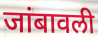
जांबावली